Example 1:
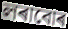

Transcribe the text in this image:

লৰাবোৰ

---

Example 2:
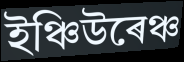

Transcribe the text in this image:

ইঞ্চিউৰেঞ্চ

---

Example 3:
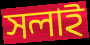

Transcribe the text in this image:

সলাই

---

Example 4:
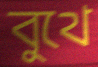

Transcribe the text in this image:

বুথে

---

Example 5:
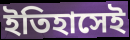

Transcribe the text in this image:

ইতিহাসেই